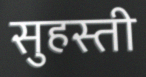
सुहस्ती